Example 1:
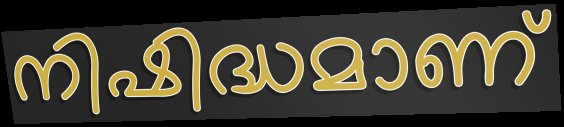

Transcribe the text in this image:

നിഷിദ്ധമാണ്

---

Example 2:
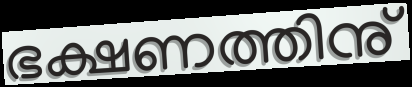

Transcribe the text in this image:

ഭക്ഷണത്തിനു്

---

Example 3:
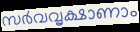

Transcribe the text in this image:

സർവവൃക്ഷാണാം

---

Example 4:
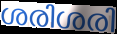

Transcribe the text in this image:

ശരിശരി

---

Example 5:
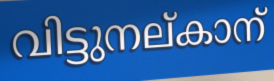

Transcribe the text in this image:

വിട്ടുനല്കാന്